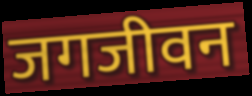
जगजीवन